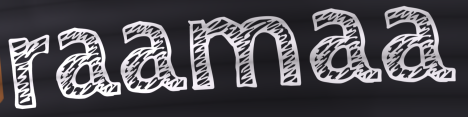
raamaa